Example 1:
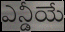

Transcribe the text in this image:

ఎన్డీయే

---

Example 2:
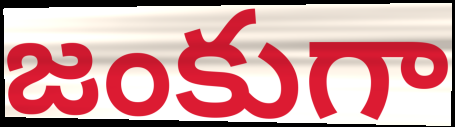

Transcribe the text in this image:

జంకుగా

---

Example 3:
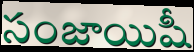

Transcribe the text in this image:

సంజాయిషీ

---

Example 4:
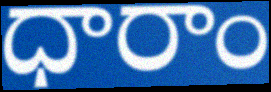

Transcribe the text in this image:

ధారాం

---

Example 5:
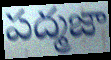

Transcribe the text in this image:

పద్మజా